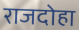
राजदोहा